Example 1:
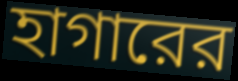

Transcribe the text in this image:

হাগারের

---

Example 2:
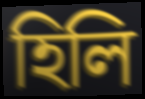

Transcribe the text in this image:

হিলি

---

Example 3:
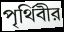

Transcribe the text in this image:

পৃর্থিবীর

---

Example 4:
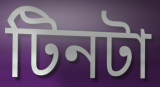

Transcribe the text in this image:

টিনটা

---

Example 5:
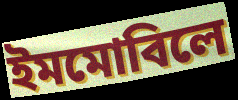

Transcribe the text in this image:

ইমমোবিলে